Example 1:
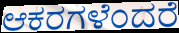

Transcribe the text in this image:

ಆಕರಗಳೆಂದರೆ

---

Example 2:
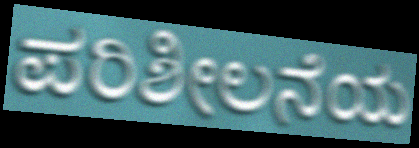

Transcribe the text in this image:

ಪರಿಶೀಲನೆಯ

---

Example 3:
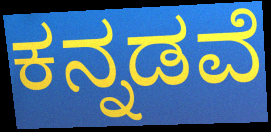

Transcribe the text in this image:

ಕನ್ನಡವೆ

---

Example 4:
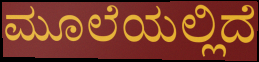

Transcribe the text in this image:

ಮೂಲೆಯಲ್ಲಿದೆ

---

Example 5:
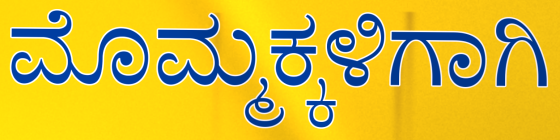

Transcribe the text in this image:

ಮೊಮ್ಮಕ್ಕಳಿಗಾಗಿ